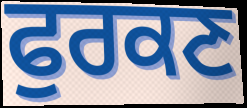
ਫੁਰਕਣ